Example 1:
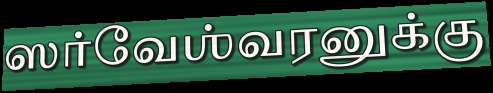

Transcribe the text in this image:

ஸர்வேஶ்வரனுக்கு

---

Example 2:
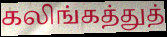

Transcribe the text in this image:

கலிங்கத்துத்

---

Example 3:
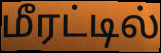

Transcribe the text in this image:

மீரட்டில்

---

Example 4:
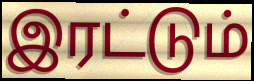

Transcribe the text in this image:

இரட்டும்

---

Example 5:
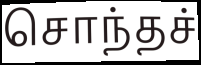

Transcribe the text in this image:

சொந்தச்